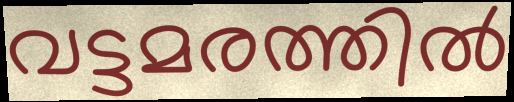
വട്ടമരത്തിൽ